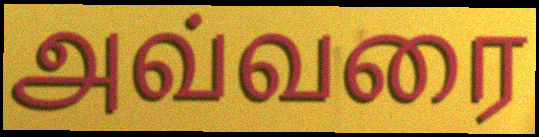
அவ்வரை